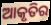
ଆକୃତିର